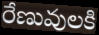
రేణువులకి